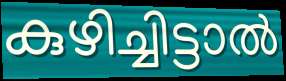
കുഴിച്ചിട്ടാൽ